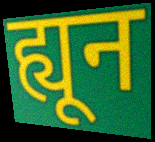
ह्यून